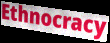
Ethnocracy